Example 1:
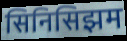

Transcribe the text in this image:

सिनिसिझम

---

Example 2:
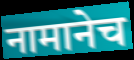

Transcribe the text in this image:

नामानेच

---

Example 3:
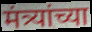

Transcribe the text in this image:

मंत्र्यांच्या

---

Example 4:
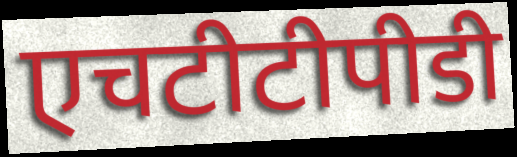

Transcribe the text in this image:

एचटीटीपीडी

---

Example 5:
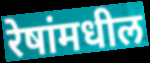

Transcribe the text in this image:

रेषांमधील